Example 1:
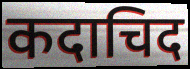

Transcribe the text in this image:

कदाचिद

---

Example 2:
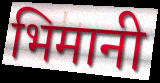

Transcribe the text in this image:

भिमानी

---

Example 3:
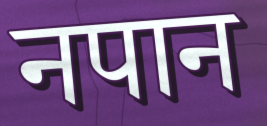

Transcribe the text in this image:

नपान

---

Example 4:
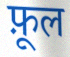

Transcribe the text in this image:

फ़ूल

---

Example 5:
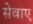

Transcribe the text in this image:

सेवाए